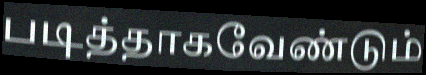
படித்தாகவேண்டும்